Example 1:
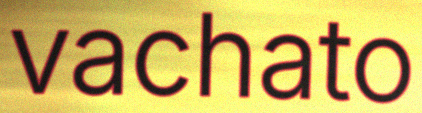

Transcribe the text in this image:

vachato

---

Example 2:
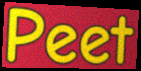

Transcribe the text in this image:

Peet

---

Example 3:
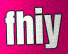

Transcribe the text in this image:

fhiy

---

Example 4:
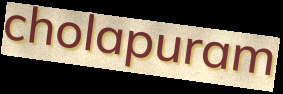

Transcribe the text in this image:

cholapuram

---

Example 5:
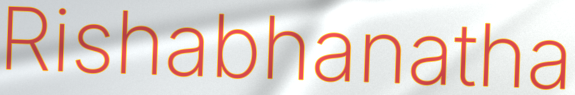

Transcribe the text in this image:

Rishabhanatha